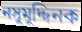
নসুমুদ্দিনক